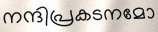
നന്ദിപ്രകടനമോ